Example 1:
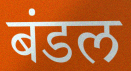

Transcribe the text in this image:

बंडल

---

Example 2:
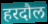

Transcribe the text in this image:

हरदौल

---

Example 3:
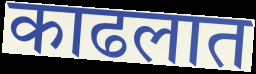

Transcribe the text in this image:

काढलात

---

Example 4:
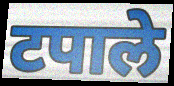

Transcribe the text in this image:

टपाले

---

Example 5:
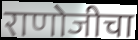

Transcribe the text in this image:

राणोजीचा